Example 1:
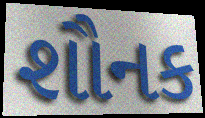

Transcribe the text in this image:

શૌનક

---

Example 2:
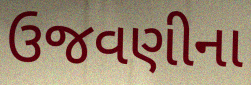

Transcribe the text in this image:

ઉજવણીના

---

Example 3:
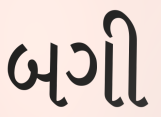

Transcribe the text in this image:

બગી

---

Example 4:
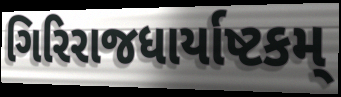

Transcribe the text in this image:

ગિરિરાજધાર્યાષ્ટકમ્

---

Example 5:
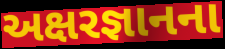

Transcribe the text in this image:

અક્ષરજ્ઞાનના